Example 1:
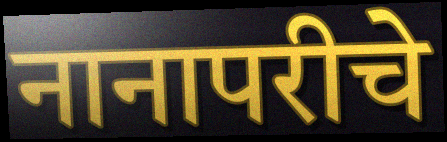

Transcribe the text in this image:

नानापरीचे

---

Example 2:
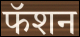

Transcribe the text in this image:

फॅशन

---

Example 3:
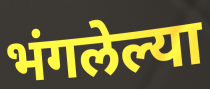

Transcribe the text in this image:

भंगलेल्या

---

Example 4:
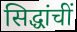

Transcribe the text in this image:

सिद्धांचीं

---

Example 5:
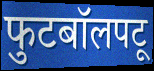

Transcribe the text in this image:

फुटबॉलपटू